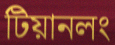
টিয়ানলং